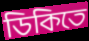
ডিকিতে